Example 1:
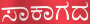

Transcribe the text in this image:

ಸಾಕಾಗದ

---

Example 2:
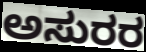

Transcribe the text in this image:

ಅಸುರರ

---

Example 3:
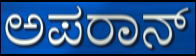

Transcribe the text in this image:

ಅಪರಾನ್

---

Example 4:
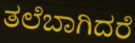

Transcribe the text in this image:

ತಲೆಬಾಗಿದರೆ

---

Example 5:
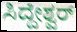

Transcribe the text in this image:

ಸಿದ್ದೇಶ್ವರ್